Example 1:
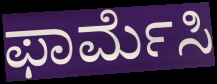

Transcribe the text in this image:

ಫಾರ್ಮೆಸಿ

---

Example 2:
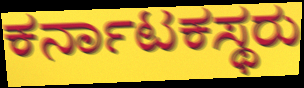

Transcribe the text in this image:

ಕರ್ನಾಟಕಸ್ಥರು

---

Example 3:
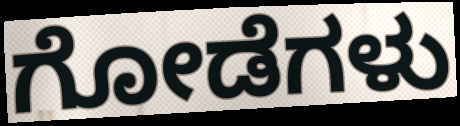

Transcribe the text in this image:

ಗೋಡೆಗಳು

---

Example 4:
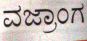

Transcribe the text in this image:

ವಜ್ರಾಂಗ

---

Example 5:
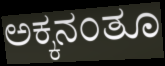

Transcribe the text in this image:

ಅಕ್ಕನಂತೂ